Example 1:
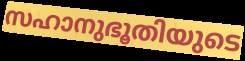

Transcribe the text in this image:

സഹാനുഭൂതിയുടെ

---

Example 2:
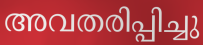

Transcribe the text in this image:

അവതരിപ്പിച്ചു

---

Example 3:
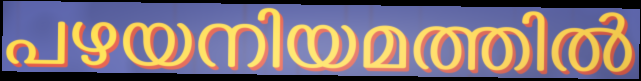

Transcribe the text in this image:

പഴയനിയമത്തിൽ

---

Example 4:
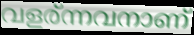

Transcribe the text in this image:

വളര്ന്നവനാണ്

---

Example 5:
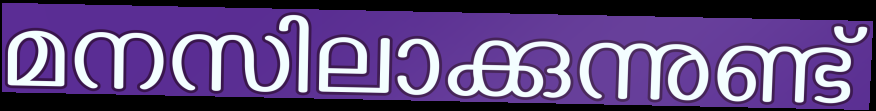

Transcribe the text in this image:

മനസിലാക്കുന്നുണ്ട്